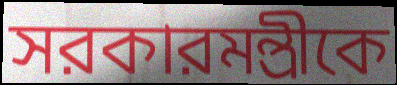
সরকারমন্ত্রীকে